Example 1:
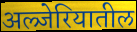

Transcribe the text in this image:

अल्जेरियातील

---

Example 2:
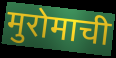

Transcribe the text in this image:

मुरोमाची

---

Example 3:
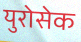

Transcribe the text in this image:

युरोसेक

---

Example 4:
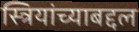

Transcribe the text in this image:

स्त्रियांच्याबद्दल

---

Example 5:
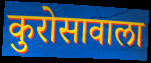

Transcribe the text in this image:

कुरोसावाला